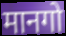
मानगो